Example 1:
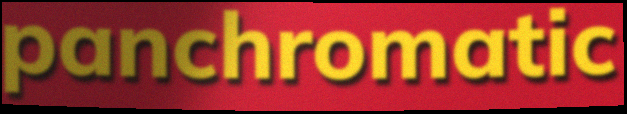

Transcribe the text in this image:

panchromatic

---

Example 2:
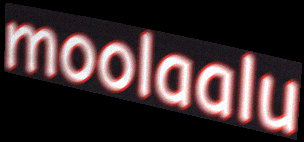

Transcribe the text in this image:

moolaalu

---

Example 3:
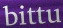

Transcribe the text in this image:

bittu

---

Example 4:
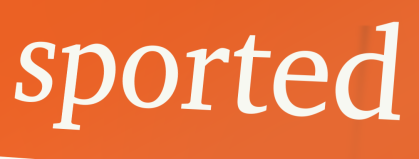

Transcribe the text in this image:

sported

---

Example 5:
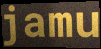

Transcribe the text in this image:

jamu